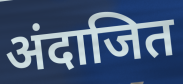
अंदाजित